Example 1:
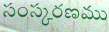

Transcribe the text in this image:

సంస్కరణము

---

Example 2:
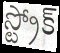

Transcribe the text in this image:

స్ట్రోక్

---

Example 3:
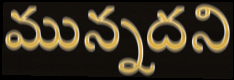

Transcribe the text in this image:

మున్నదని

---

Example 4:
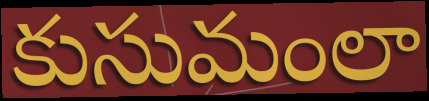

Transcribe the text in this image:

కుసుమంలా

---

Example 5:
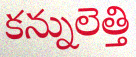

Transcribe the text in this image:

కన్నులెత్తి